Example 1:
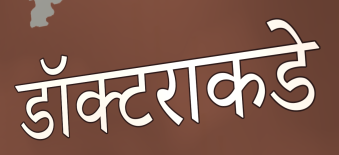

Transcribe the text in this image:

डॉक्टराकडे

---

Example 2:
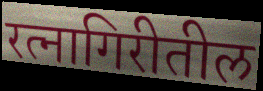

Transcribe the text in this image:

रत्नागिरीतील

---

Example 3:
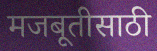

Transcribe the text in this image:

मजबूतीसाठी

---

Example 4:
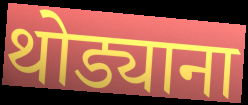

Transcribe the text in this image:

थोड्याना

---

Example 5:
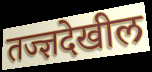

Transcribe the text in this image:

तज्ज्ञदेखील